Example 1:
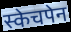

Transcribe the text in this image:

स्केचपेन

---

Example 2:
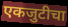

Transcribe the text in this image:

एकजुटीचा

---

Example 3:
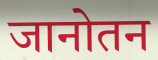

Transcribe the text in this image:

जानोतन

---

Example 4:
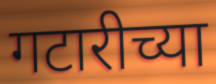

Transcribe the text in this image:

गटारीच्या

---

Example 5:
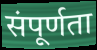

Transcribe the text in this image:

संपूर्णता